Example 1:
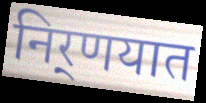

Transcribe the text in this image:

निर्णयात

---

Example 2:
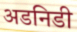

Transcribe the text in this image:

अडनिडी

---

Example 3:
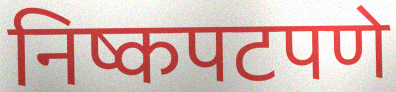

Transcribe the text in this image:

निष्कपटपणे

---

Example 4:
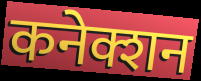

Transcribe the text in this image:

कनेक्‍शन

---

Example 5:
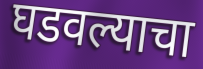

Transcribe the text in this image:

घडवल्याचा